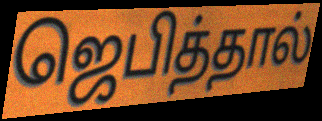
ஜெபித்தால்